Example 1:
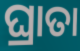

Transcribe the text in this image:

ଘ୍ରାତା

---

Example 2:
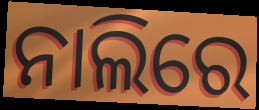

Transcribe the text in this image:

ନାଲିରେ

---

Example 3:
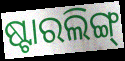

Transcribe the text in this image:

ଷ୍ଟାରଲିଙ୍ଗ୍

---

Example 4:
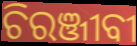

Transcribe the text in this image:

ଚିରଞ୍ଜୀବୀ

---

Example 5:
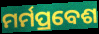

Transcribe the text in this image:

ମର୍ମପ୍ରବେଶ